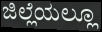
ಜಿಲ್ಲೆಯಲ್ಲೂ